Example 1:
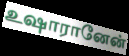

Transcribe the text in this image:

உஷாரானேன்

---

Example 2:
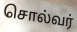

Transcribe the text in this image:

சொல்வர்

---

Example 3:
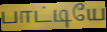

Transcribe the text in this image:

பாட்டியே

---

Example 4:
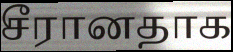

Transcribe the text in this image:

சீரானதாக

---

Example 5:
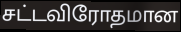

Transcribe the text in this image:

சட்டவிரோதமான